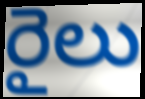
రైలు